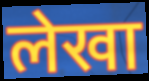
लेखा